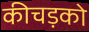
कीचड़को